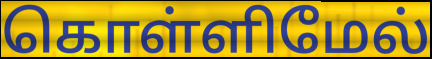
கொள்ளிமேல்